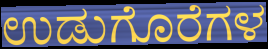
ಉಡುಗೊರೆಗಳ